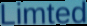
Limted